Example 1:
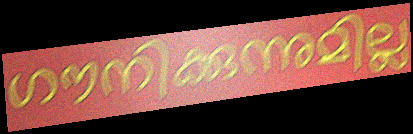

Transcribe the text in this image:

ഗൗനിക്കുന്നുമില്ല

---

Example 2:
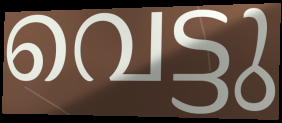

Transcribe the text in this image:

വെട്ടു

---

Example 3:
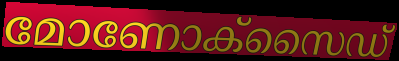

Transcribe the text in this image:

മോണോക്സൈഡ്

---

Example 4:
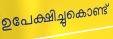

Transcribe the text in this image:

ഉപേക്ഷിച്ചുകൊണ്ട്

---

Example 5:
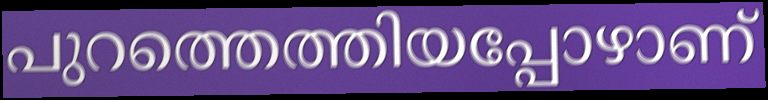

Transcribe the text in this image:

പുറത്തെത്തിയപ്പോഴാണ്